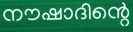
നൗഷാദിന്റെ